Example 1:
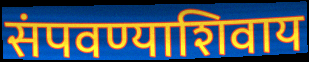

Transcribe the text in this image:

संपवण्याशिवाय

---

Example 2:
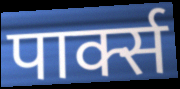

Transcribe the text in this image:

पार्क्स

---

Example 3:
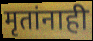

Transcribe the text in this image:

मृतांनाही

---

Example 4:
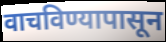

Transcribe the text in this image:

वाचविण्यापासून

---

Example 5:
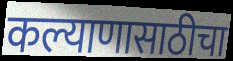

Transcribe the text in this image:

कल्याणासाठीचा